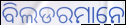
ବିଲଡରମାନେ